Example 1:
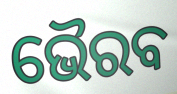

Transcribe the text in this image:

ଭୈରବ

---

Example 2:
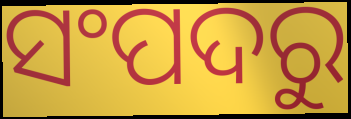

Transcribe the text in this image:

ସଂପଦରୁ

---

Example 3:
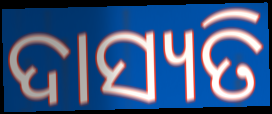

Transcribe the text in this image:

ଦାସ୍ୟତି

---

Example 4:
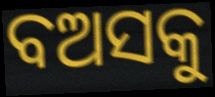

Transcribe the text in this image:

ବଅସକୁ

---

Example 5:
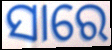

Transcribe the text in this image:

ସାରେ